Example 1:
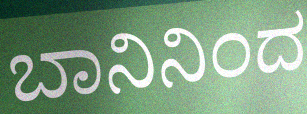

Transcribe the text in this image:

ಬಾನಿನಿಂದ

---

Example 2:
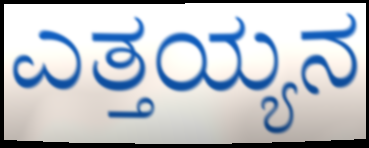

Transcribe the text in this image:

ಎತ್ತಯ್ಯನ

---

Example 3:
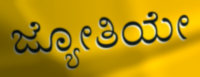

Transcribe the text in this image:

ಜ್ಯೋತಿಯೇ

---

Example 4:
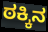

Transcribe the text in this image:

ಠಕ್ಕಿನ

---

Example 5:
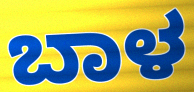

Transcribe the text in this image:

ಬಾಳ